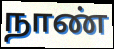
நாண்